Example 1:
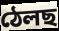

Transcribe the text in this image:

ঠেলছ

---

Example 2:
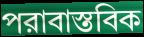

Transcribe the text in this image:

পরাবাস্তবিক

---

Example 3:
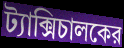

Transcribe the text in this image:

ট্যাক্সিচালকের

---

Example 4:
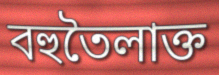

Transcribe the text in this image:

বহুতৈলাক্ত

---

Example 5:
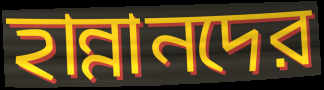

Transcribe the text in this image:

হান্নানদের